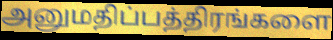
அனுமதிப்பத்திரங்களை